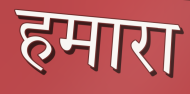
हमारा